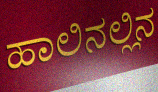
ಹಾಲಿನಲ್ಲಿನ